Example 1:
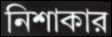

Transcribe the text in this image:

নিশাকার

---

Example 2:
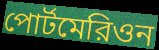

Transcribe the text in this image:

পোর্টমেরিওন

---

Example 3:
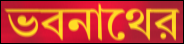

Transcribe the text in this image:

ভবনাথের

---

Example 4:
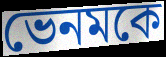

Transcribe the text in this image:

ভেনমকে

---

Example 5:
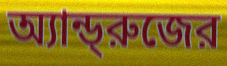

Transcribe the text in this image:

অ্যান্ড্‌রুজের